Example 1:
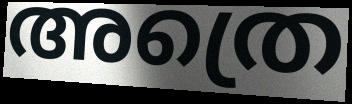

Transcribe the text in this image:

അത്രെ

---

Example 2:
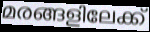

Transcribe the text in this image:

മരങ്ങളിലേക്ക്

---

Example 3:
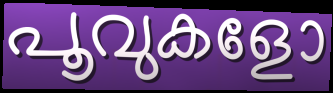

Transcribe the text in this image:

പൂവുകളോ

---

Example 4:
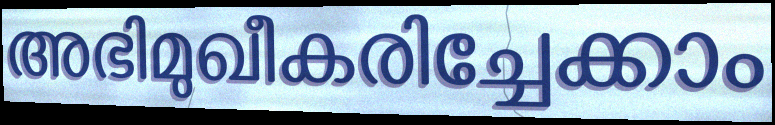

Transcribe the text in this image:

അഭിമുഖീകരിച്ചേക്കാം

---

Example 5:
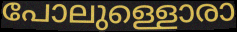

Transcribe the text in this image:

പോലുള്ളൊരാ